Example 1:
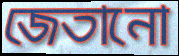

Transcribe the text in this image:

জেতানো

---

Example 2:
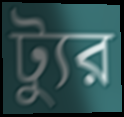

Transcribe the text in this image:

ট্যুর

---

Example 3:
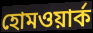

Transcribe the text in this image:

হোমওয়ার্ক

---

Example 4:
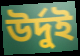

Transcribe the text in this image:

উর্দুই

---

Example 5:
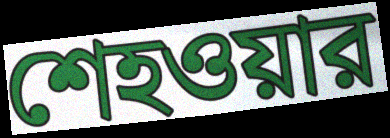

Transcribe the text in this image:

শেহওয়ার